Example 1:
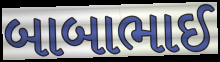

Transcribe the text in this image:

બાબાભાઈ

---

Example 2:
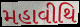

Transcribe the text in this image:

મહાવીથિ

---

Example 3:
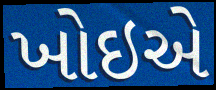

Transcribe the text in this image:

ખોઇએ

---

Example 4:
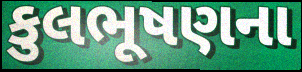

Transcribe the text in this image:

કુલભૂષણના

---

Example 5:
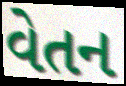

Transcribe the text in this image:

વેતન